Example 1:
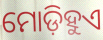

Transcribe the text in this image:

ମୋଡ଼ିହୁଏ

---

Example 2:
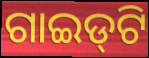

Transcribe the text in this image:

ଗାଇଡ୍‌ଟି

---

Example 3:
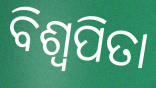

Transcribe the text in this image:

ବିଶ୍ୱପିତା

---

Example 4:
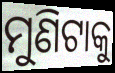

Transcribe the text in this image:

ମୁଣିଟାକୁ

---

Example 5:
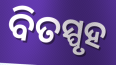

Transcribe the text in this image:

ବିତସ୍ପୃହ